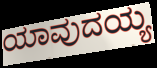
ಯಾವುದಯ್ಯ